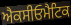
ਐਕਸੀਓਮੈਟਿਕ